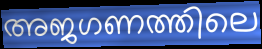
അജഗണത്തിലെ